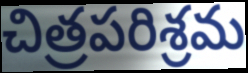
చిత్రపరిశ్రమ